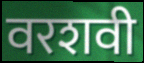
वरशवी